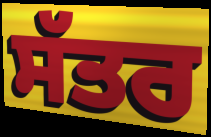
ਸੱਤਰ